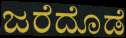
ಜರೆದೊಡೆ